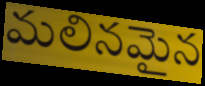
మలినమైన